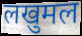
लखुमल